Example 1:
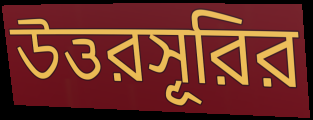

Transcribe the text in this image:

উত্তরসূরির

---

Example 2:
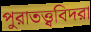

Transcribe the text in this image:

পুরাতত্ত্ববিদরা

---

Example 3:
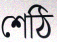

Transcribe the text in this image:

শেঠি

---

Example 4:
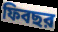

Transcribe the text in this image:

ফিবছর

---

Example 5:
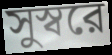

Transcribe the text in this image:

সুস্বরে